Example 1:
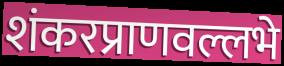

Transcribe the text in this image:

शंकरप्राणवल्लभे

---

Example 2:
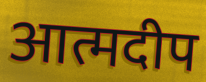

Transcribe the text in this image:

आत्मदीप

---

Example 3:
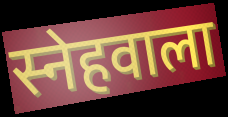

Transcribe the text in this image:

स्नेहवाला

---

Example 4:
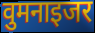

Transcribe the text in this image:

वुमनाइजर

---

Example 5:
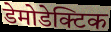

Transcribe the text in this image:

डेमोडेक्टिक